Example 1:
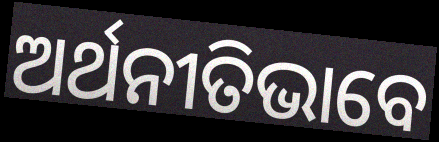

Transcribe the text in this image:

ଅର୍ଥନୀତିଭାବେ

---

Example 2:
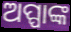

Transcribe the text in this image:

ଅପ୍ପାଙ୍କ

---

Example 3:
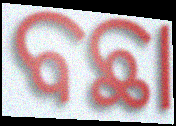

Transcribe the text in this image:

ବଛା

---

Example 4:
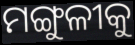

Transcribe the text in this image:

ମଙ୍ଗୁଳୀକୁ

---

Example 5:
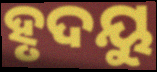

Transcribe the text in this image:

ହୃଦୟୁ